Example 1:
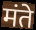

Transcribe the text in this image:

मंते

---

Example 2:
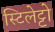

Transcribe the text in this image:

स्टिलेट्टो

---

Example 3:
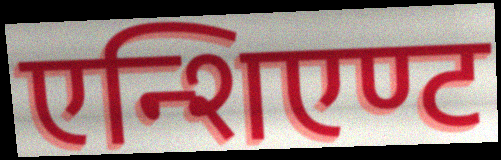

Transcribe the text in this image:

एन्शिएण्ट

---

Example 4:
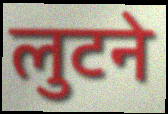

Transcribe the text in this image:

लुटने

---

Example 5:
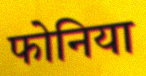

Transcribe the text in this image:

फोनिया